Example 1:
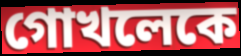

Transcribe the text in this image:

গোখলেকে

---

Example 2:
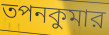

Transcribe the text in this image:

তপনকুমার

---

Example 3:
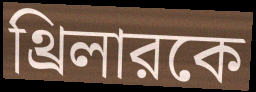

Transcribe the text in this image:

থ্রিলারকে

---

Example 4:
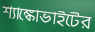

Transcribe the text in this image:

শ্যাঙ্কোভাইটের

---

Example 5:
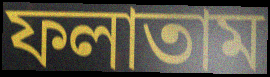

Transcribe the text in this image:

ফলাতাম